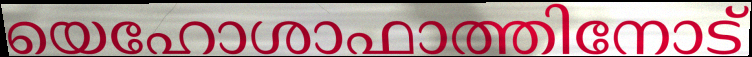
യെഹോശാഫാത്തിനോട്